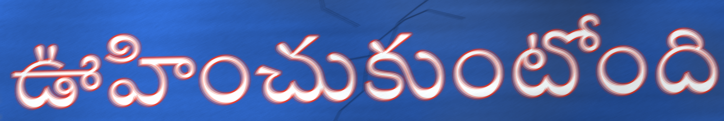
ఊహించుకుంటోంది